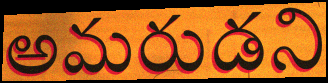
అమరుడని